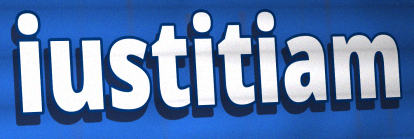
iustitiam